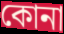
কোনা